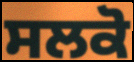
ਸਲਕੋ